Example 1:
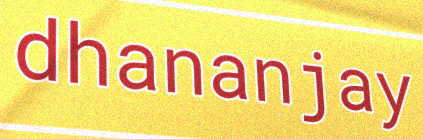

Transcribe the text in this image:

dhananjay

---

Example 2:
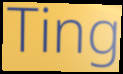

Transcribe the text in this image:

Ting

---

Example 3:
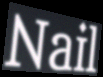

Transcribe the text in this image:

Nail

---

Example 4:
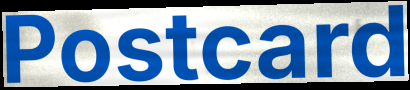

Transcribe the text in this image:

Postcard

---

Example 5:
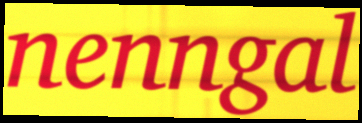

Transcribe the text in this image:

nenngal